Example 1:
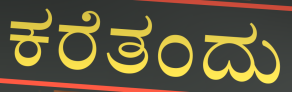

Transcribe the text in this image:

ಕರೆತಂದು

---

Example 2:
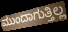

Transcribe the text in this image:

ಮುಂದಾಗುತ್ತಿಲ್ಲ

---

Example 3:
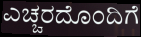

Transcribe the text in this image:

ಎಚ್ಚರದೊಂದಿಗೆ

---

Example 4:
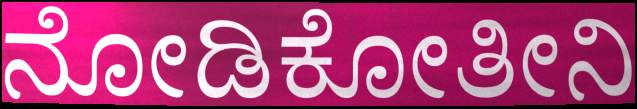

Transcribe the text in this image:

ನೋಡಿಕೋತೀನಿ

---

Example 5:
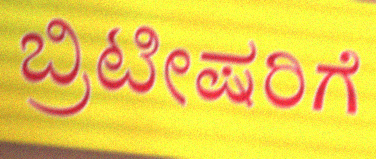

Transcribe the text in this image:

ಬ್ರಿಟೀಷರಿಗೆ